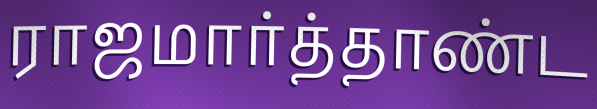
ராஜமார்த்தாண்ட